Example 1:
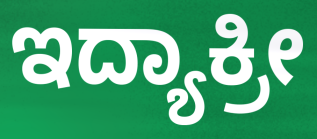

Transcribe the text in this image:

ಇದ್ಯಾಕ್ರೀ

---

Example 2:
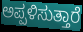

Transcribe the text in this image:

ಅಪ್ಪಳಿಸುತ್ತಾರೆ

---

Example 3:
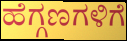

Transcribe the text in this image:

ಹೆಗ್ಗಣಗಳಿಗೆ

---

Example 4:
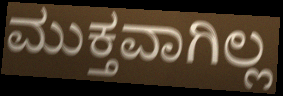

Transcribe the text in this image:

ಮುಕ್ತವಾಗಿಲ್ಲ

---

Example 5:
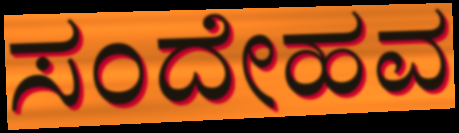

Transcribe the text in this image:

ಸಂದೇಹವ